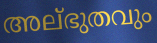
അല്ഭുതവും